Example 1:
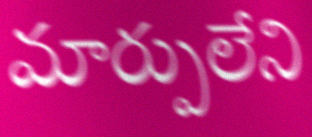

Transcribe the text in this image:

మార్పులేని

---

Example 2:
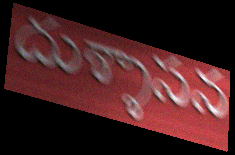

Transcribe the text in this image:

దుశ్శాసన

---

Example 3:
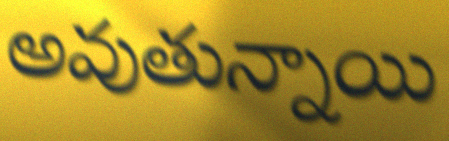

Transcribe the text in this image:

అవుతున్నాయి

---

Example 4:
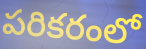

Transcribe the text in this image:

పరికరంలో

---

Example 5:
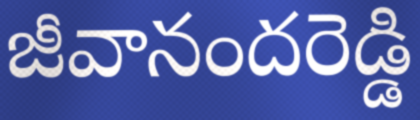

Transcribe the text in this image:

జీవానందరెడ్డి